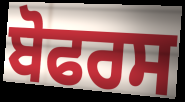
ਬੋਫਰਸ